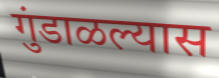
गुंडाळल्यास